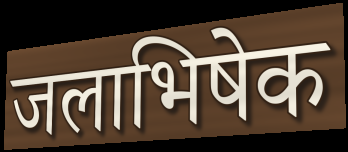
जलाभिषेक